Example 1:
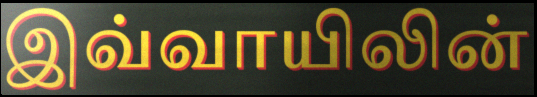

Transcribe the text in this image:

இவ்வாயிலின்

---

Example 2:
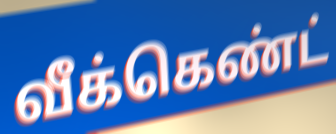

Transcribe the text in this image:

வீக்கெண்ட்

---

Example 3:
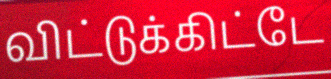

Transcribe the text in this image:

விட்டுக்கிட்டே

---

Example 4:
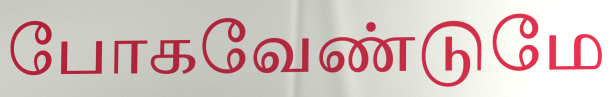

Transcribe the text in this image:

போகவேண்டுமே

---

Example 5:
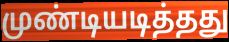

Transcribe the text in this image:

முண்டியடித்தது